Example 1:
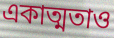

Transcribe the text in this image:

একাত্মতাও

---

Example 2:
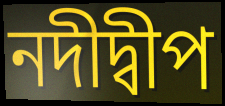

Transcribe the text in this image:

নদীদ্বীপ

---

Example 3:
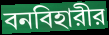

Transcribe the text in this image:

বনবিহারীর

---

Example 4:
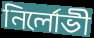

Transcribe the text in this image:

নির্লোভী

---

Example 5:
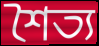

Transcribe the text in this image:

শৈত্য